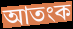
আতংক